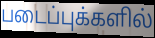
படைப்புக்களில்